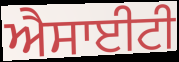
ਐਸਾਈਟੀ